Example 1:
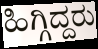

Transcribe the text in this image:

ಹಿಗ್ಗಿದ್ದರು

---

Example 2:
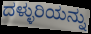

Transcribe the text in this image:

ದಳ್ಳುರಿಯನ್ನು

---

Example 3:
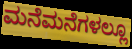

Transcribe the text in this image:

ಮನೆಮನೆಗಳಲ್ಲೂ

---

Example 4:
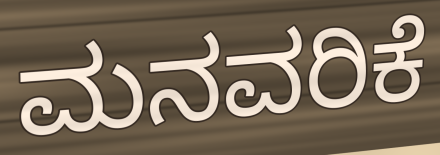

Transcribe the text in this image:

ಮನವರಿಕೆ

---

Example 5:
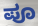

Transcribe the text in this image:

ಪೂ